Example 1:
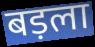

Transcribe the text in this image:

बड़ला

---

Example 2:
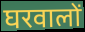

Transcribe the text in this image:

घरवालों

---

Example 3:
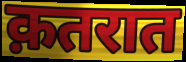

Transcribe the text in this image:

क़तरात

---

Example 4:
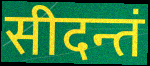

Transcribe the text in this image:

सीदन्तं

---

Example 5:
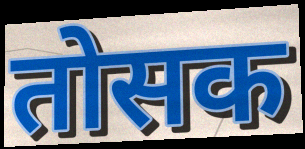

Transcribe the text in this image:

तोसक